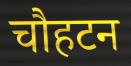
चौहटन